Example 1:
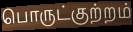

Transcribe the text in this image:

பொருட்குற்றம்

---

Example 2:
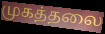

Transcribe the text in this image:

முகத்தலை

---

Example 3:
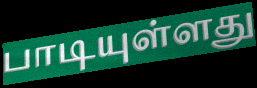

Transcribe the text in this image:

பாடியுள்ளது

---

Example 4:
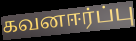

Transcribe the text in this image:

கவனஈர்ப்பு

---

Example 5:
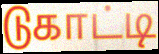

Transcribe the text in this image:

டுகாட்டி